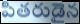
పితరుడైన